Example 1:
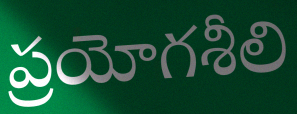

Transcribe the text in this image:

ప్రయోగశీలి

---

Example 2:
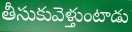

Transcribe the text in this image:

తీసుకువెళ్తుంటాడు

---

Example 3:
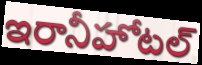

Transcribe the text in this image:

ఇరానీహోటల్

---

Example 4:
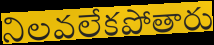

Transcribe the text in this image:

నిలవలేకపోతారు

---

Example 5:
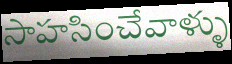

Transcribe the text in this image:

సాహసించేవాళ్ళు